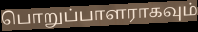
பொறுப்பாளராகவும்